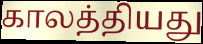
காலத்தியது